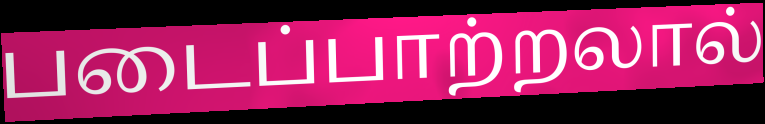
படைப்பாற்றலால்